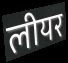
लीयर